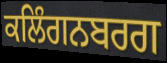
ਕਲਿੰਗਨਬਰਗ